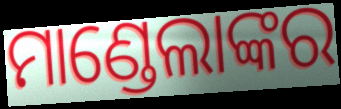
ମାଣ୍ଡେଲାଙ୍କର